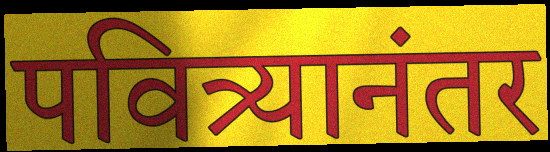
पवित्र्यानंतर